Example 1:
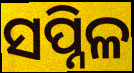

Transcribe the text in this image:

ସପ୍ନିଳ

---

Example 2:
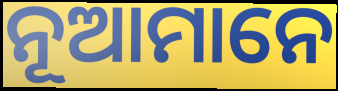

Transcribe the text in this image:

ନୂଆମାନେ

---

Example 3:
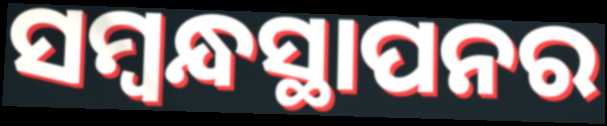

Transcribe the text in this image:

ସମ୍ବନ୍ଧସ୍ଥାପନର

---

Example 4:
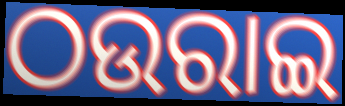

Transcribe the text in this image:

ଠଉରାଇ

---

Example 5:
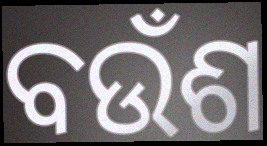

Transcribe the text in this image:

ବଉଁଶ